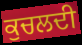
ਕੁਚਲਦੀ